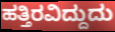
ಹತ್ತಿರವಿದ್ದುದು